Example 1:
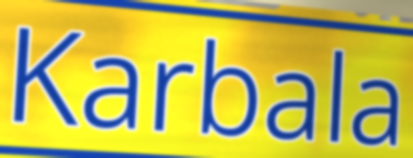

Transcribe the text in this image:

Karbala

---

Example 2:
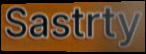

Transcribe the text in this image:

Sastrty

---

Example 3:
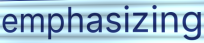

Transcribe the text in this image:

emphasizing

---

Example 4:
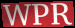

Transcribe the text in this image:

WPR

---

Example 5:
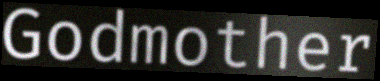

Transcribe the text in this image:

Godmother